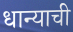
धान्याची